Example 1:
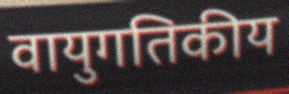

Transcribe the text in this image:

वायुगतिकीय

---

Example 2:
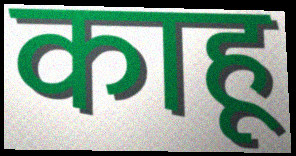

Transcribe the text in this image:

काहू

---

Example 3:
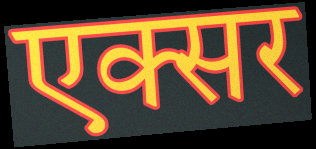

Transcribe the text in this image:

एक्सर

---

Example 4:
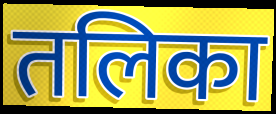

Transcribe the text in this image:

तलिका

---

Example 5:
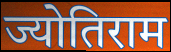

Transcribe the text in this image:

ज्योतिराम